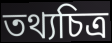
তথ্যচিত্ৰ